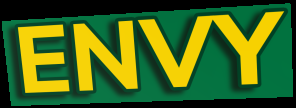
ENVY